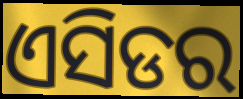
ଏସିଡର